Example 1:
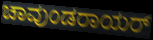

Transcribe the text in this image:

ಚಾವುಂಡರಾಯರ್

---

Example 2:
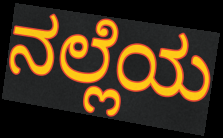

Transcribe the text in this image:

ನಲ್ಲೆಯ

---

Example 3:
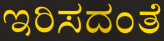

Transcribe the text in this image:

ಇರಿಸದಂತೆ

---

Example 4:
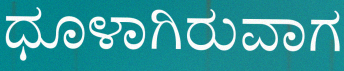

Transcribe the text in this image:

ಧೂಳಾಗಿರುವಾಗ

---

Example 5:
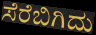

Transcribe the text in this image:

ಸೆರೆಬಿಗಿದು